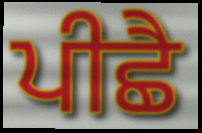
ਪੀਛੈ